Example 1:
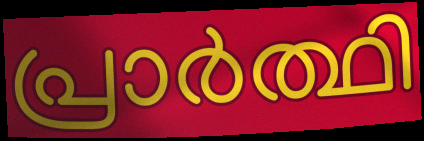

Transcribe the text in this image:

പ്രാർത്ഥി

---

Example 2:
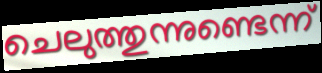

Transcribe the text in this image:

ചെലുത്തുന്നുണ്ടെന്ന്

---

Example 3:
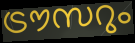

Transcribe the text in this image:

ട്രൗസറും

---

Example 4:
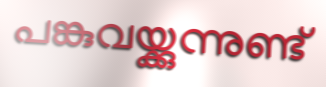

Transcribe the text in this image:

പങ്കുവയ്ക്കുന്നുണ്ട്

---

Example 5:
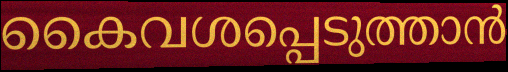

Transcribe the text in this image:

കൈവശപ്പെടുത്താൻ